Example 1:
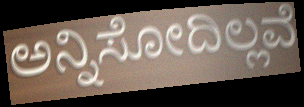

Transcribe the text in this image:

ಅನ್ನಿಸೋದಿಲ್ಲವೆ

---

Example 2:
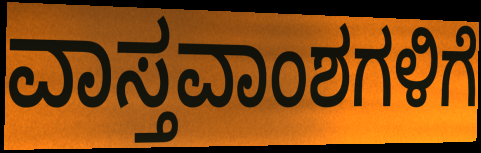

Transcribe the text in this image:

ವಾಸ್ತವಾಂಶಗಳಿಗೆ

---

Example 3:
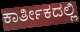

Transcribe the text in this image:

ಕಾರ್ತೀಕದಲ್ಲಿ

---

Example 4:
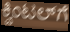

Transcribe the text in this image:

ಕ್ವಿಂಟಲ್‌ಗೆ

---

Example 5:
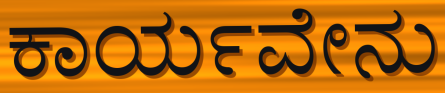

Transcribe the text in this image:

ಕಾರ್ಯವೇನು